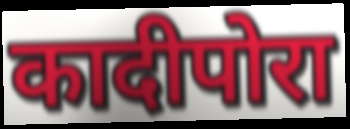
कादीपोरा